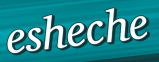
esheche